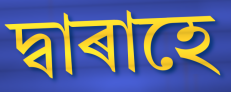
দ্বাৰাহে